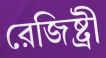
রেজিষ্ট্রী